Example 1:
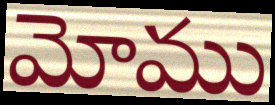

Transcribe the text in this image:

మోము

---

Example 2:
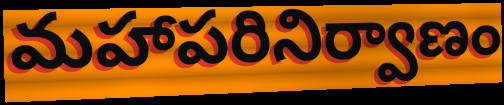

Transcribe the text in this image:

మహాపరినిర్వాణం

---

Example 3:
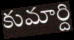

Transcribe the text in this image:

కుమార్ది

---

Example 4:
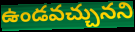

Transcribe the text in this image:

ఉండవచ్చునని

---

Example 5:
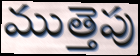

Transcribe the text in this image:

ముత్తెపు